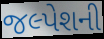
જલ્પેશની